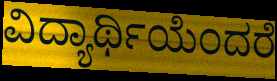
ವಿದ್ಯಾರ್ಥಿಯೆಂದರೆ